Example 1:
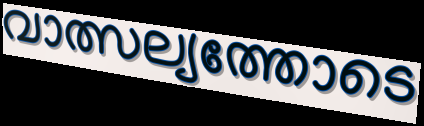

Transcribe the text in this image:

വാത്സല്യത്തോടെ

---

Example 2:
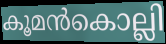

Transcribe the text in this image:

കൂമൻകൊല്ലി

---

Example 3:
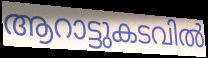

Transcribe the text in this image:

ആറാട്ടുകടവിൽ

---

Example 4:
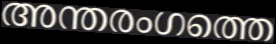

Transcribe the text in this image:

അന്തരംഗത്തെ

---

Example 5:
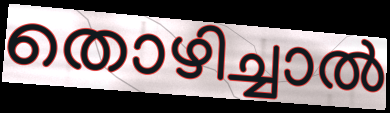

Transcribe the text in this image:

തൊഴിച്ചാൽ